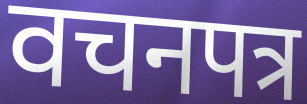
वचनपत्र